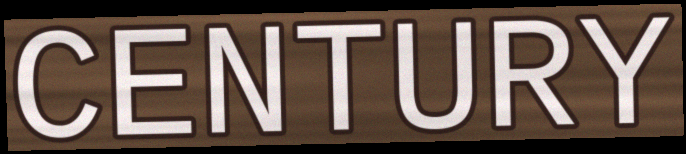
CENTURY